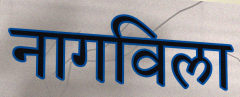
नागविला